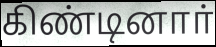
கிண்டினார்